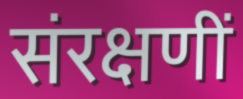
संरक्षणीं